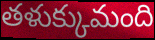
తళుక్కుమంది